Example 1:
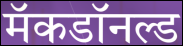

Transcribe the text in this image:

मॅकडॉनल्ड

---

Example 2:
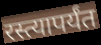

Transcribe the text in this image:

रस्त्यापर्यंत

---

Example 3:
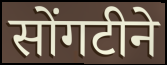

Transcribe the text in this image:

सोंगटीने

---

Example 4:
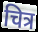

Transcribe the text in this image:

चित्र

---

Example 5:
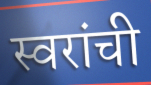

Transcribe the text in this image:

स्वरांची